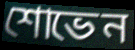
শোভেন